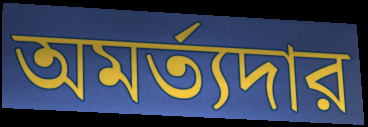
অমর্ত্যদার